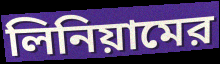
লিনিয়ামের